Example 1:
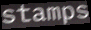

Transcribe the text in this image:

stamps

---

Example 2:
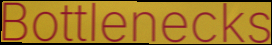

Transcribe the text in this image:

Bottlenecks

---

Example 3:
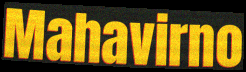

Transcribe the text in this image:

Mahavirno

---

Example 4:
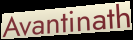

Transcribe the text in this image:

Avantinath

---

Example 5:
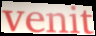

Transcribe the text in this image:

venit